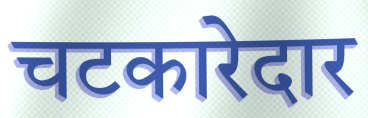
चटकारेदार